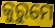
କୁରୁମେ